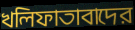
খলিফাতাবাদের